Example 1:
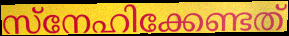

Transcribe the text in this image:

സ്നേഹിക്കേണ്ടത്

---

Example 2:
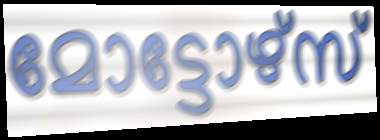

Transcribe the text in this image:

മോട്ടോഴ്സ്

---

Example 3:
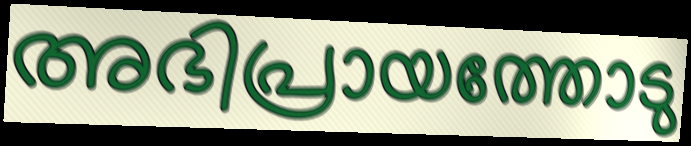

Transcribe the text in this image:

അഭിപ്രായത്തോടു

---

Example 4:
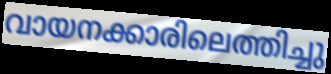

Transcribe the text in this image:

വായനക്കാരിലെത്തിച്ചു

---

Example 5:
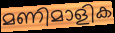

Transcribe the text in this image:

മണിമാളിക